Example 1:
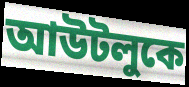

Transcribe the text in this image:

আউটলুকে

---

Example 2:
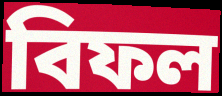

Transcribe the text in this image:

বিফল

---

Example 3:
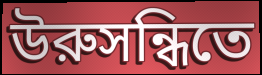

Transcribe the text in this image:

উরুসন্ধিতে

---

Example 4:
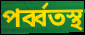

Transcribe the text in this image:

পর্ব্বতস্থ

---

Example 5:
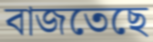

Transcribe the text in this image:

বাজতেছে